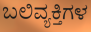
ಬಲಿವ್ಯಕ್ತಿಗಳ